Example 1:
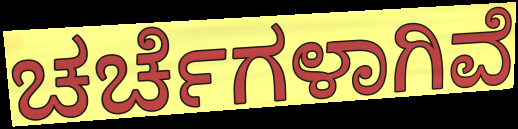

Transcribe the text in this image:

ಚರ್ಚೆಗಳಾಗಿವೆ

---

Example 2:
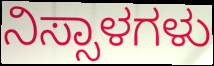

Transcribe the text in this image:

ನಿಸ್ಸಾಳಗಳು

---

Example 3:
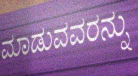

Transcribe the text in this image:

ಮಾಡುವವರನ್ನು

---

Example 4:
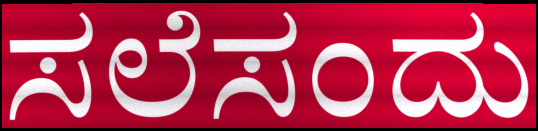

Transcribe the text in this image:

ಸಲೆಸಂದು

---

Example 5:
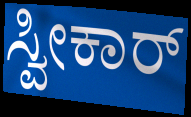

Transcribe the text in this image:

ಸ್ವೀಕಾರ್